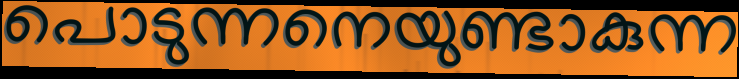
പൊടുന്നനെയുണ്ടാകുന്ന